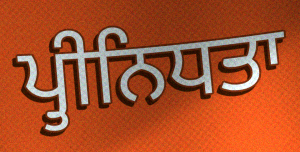
ਪ੍ਤੀਨਿਧਤਾ